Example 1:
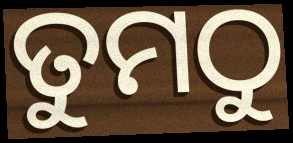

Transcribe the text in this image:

ତୁମଠୁ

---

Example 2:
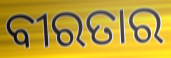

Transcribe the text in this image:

ବୀରତାର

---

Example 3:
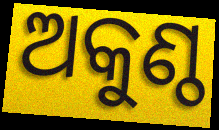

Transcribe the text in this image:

ଅକୁଣ୍ଠ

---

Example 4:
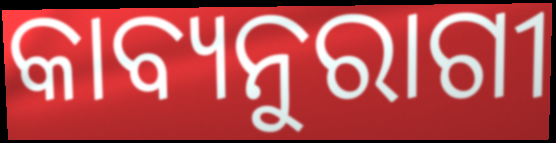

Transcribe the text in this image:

କାବ୍ୟନୁରାଗୀ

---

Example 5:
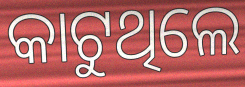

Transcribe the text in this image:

କାଟୁଥିଲେ